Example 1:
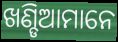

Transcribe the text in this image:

ଖଣ୍ଡିଆମାନେ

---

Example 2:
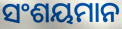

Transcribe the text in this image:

ସଂଶୟମାନ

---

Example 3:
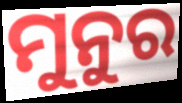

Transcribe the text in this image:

ମୁନୁର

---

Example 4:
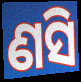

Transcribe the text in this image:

ଣସି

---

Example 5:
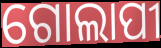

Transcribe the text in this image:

ଗୋଲାପୀ